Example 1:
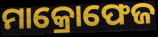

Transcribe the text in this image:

ମାକ୍ରୋଫେଜ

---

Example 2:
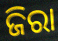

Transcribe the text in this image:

ଜିରା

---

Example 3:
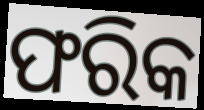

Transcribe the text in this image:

ଫରିକ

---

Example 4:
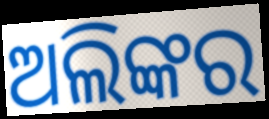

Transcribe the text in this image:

ଅଲିଙ୍କର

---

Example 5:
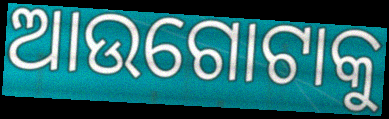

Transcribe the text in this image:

ଆଉଗୋଟାକୁ